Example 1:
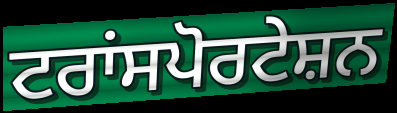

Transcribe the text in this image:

ਟਰਾਂਸਪੋਰਟੇਸ਼ਨ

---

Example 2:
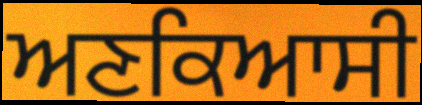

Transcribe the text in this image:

ਅਣਕਿਆਸੀ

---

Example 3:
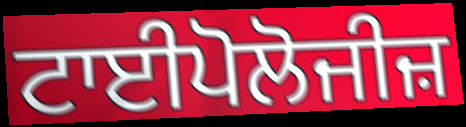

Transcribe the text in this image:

ਟਾਈਪੋਲੋਜੀਜ਼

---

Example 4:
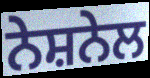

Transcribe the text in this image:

ਨੇਸ਼ਨੇਲ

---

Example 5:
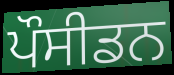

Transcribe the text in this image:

ਪੌਸੀਡਨ